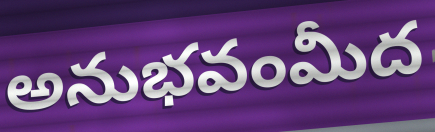
అనుభవంమీద